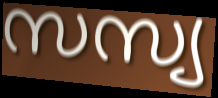
സസ്യ